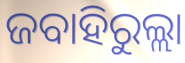
ଜବାହିରୁଲ୍ଲା